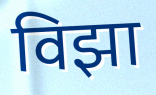
विझा